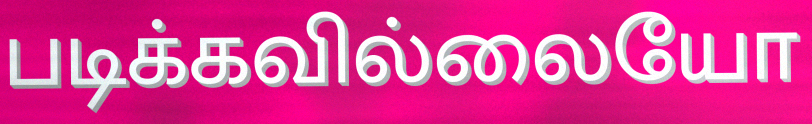
படிக்கவில்லையோ